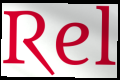
Rel